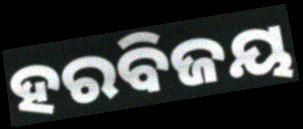
ହରବିଜୟ